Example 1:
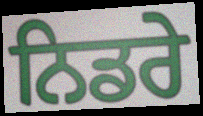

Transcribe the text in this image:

ਨਿਡਰੇ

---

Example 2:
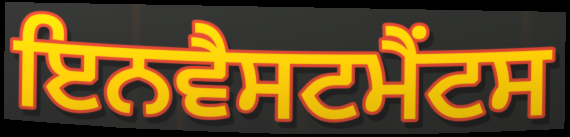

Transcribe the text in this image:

ਇਨਵੈਸਟਮੈਂਟਸ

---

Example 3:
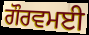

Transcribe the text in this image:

ਗੌਰਵਮਈ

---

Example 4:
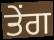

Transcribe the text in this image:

ਤੇਂਗ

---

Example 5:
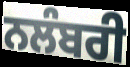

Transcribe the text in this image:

ਨਲੰਬਰੀ